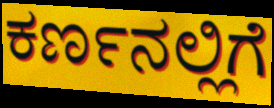
ಕರ್ಣನಲ್ಲಿಗೆ